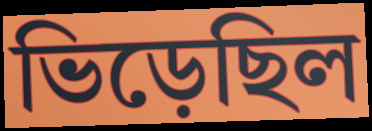
ভিড়েছিল